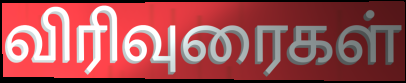
விரிவுரைகள்